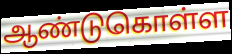
ஆண்டுகொள்ள